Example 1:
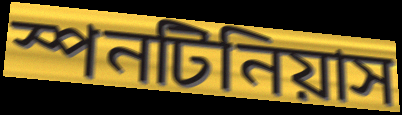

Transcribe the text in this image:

স্পনটিনিয়াস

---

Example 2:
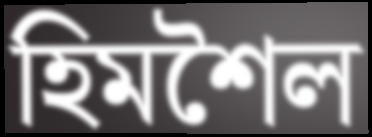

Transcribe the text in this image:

হিমশৈল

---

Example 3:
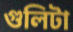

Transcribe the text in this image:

গুলিটা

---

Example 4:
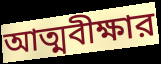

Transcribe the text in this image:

আত্মবীক্ষার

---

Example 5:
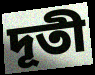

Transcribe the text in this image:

দূতী